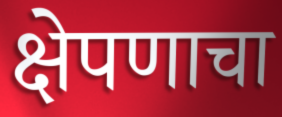
क्षेपणाचा